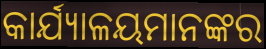
କାର୍ଯ୍ୟାଳୟମାନଙ୍କର